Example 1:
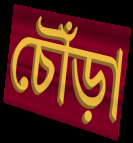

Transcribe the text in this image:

চৌঁড়া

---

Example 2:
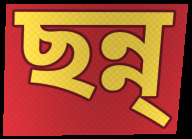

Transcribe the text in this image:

ছন্ন্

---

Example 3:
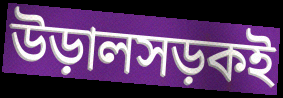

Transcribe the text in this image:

উড়ালসড়কই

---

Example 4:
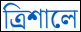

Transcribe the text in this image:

ত্রিশালে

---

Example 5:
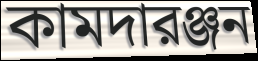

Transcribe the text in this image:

কামদারঞ্জন